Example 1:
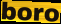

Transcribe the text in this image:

boro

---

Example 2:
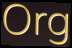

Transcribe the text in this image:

Org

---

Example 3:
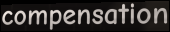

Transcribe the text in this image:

compensation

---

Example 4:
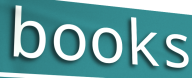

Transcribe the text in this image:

books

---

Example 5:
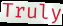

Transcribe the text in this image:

Truly